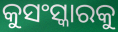
କୁସଂସ୍କାରକୁ